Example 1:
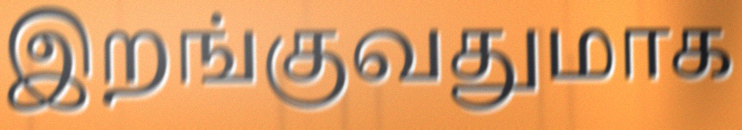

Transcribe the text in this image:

இறங்குவதுமாக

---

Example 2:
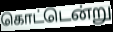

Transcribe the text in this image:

கொட்டென்று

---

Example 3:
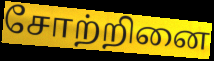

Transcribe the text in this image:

சோற்றினை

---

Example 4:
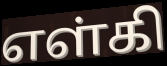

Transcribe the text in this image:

எள்கி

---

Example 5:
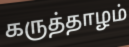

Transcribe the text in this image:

கருத்தாழம்